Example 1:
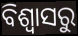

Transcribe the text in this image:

ବିଶ୍ବାସରୁ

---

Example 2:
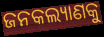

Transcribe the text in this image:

ଜନକଲ୍ୟାଣକୁ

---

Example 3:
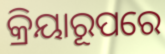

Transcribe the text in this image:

କ୍ରିୟାରୂପରେ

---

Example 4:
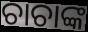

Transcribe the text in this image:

ଚାଚାଙ୍କ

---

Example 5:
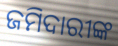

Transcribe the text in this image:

ଜମିଦାରୀଙ୍କ